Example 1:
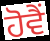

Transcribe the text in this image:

ਹੋਵੈਂ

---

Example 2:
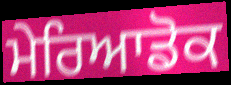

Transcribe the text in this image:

ਮੇਰਿਆਡੋਕ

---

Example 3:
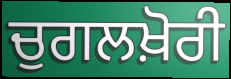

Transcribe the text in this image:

ਚੁਗਲਖ਼ੋਰੀ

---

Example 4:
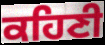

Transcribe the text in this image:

ਕਹਿਣੀ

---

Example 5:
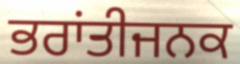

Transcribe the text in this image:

ਭਰਾਂਤੀਜਨਕ